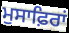
ਮੁਸਾਫ਼ਿਰਾਂ